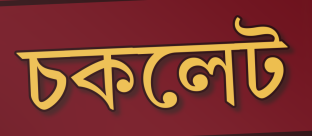
চকলেট